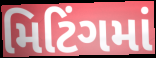
મિટિંગમાં